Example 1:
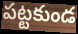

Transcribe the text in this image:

పట్టకుండ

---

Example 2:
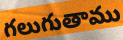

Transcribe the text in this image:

గలుగుతాము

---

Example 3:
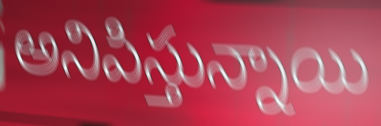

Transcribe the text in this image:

అనిపిస్తున్నాయి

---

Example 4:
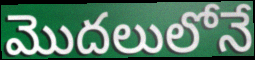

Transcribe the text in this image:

మొదలులోనే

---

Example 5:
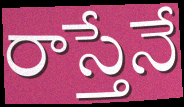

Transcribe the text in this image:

రాస్తేనే